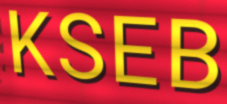
KSEB